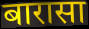
बारासा